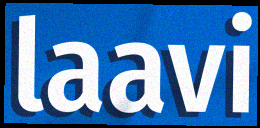
laavi